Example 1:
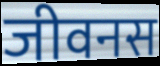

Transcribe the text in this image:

जीवनस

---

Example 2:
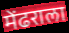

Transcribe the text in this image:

मेंढराला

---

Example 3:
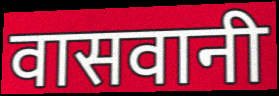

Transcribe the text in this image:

वासवानी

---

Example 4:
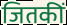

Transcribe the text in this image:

जितकीं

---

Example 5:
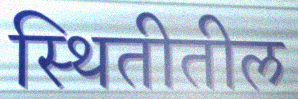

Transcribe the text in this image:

स्थितीतील